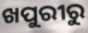
ଖପୁରୀରୁ